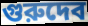
গুরুদেব